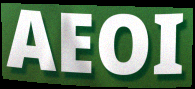
AEOI